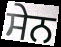
ਸੇਨ